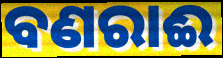
ବଣରାଈ